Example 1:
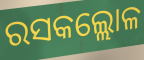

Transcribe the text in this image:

ରସକଲ୍ଲୋଳ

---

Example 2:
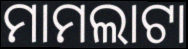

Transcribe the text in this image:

ମାମଲାଟା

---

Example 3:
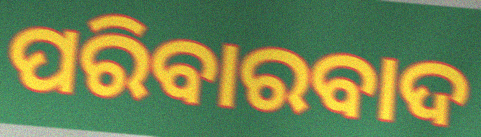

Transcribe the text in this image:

ପରିବାରବାଦ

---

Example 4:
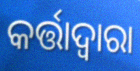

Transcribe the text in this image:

କର୍ତ୍ତାଦ୍ଵାରା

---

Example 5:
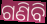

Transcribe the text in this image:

ଗଣିବି